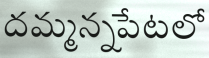
దమ్మన్నపేటలో